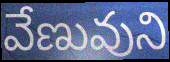
వేణువుని